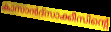
കാസാൻദ്സാക്കീസിന്റെ